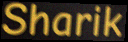
Sharik